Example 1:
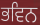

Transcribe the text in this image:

ਭਵਿਨ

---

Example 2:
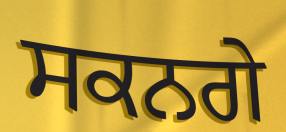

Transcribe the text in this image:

ਸਕਨਗੇ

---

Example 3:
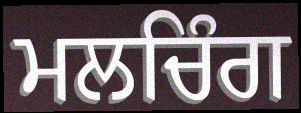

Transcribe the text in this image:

ਮਲਚਿੰਗ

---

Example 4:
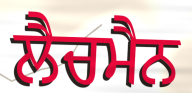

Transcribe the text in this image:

ਲੈਚਮੈਨ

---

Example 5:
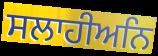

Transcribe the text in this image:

ਸਲਾਹੀਅਨਿ